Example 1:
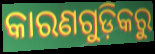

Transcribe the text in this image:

କାରଣଗୁଡ଼ିକରୁ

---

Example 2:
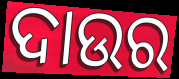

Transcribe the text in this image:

ଦାଉର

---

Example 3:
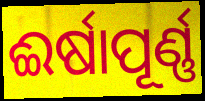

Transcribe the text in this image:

ଈର୍ଷାପୂର୍ଣ୍ଣ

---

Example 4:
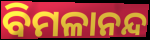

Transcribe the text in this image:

ବିମଳାନନ୍ଦ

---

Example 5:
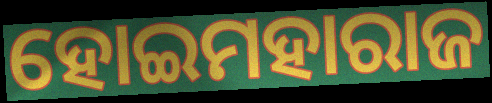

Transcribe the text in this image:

ହୋଇମହାରାଜ